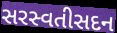
સરસ્વતીસદન